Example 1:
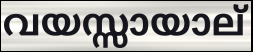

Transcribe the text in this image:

വയസ്സായാല്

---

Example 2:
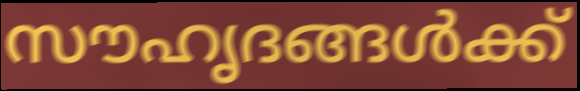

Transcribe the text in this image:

സൗഹൃദങ്ങൾക്ക്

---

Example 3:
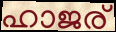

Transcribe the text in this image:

ഹാജര്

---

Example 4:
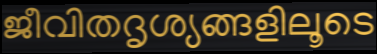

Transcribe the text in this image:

ജീവിതദൃശ്യങ്ങളിലൂടെ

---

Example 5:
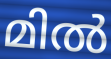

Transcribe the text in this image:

മിൽ